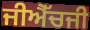
ਜੀਐੱਚਜੀ